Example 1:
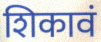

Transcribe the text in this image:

शिकावं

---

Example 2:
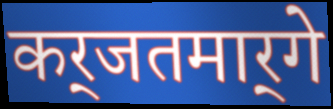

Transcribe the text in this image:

कर्जतमार्गे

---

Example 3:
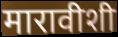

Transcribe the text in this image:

मारावीशी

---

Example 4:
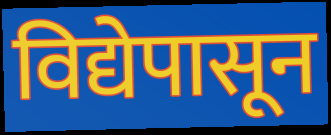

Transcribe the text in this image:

विद्येपासून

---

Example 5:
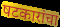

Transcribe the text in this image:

षटकारांचा